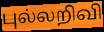
புல்லறிவி